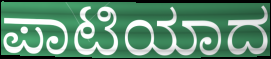
ಪಾಟಿಯಾದ